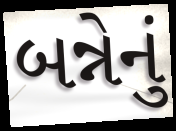
બન્નેનું